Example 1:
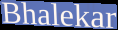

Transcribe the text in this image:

Bhalekar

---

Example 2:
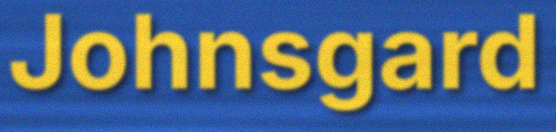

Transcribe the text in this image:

Johnsgard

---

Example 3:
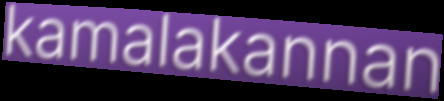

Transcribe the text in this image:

kamalakannan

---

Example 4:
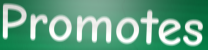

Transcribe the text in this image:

Promotes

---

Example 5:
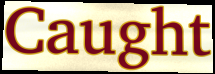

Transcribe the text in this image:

Caught